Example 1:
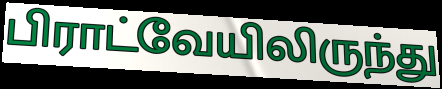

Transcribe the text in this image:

பிராட்வேயிலிருந்து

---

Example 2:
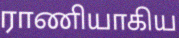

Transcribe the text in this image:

ராணியாகிய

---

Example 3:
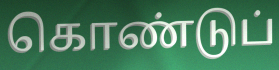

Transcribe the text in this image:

கொண்டுப்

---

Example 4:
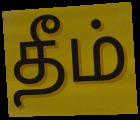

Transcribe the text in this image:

தீம்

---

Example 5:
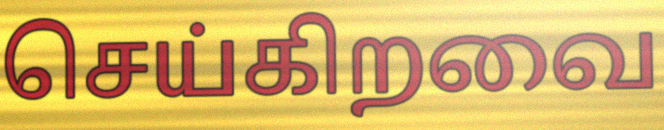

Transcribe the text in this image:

செய்கிறவை